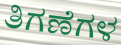
ತಿಗಣೆಗಳ